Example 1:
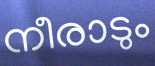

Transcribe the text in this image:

നീരാടും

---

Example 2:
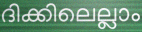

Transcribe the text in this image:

ദിക്കിലെല്ലാം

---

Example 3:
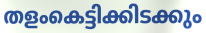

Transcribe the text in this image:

തളംകെട്ടിക്കിടക്കും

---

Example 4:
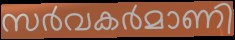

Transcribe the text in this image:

സർവകർമാണി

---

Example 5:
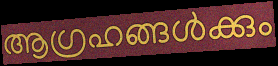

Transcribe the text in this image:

ആഗ്രഹങ്ങൾക്കും